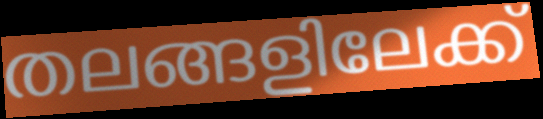
തലങ്ങളിലേക്ക്